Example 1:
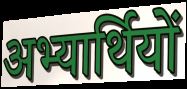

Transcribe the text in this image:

अभ्‍यार्थियों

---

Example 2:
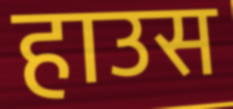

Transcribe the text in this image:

हाउस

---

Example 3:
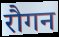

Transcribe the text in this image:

रौगन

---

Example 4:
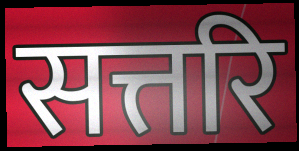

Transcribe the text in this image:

सत्तरि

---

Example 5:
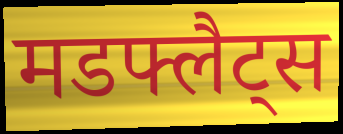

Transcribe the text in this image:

मडफ्लैट्स